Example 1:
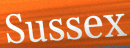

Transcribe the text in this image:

Sussex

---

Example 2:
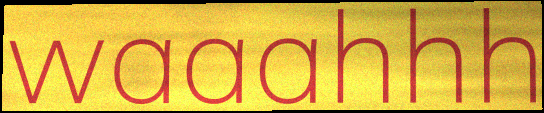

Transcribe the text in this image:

waaahhh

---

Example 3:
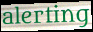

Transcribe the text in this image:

alerting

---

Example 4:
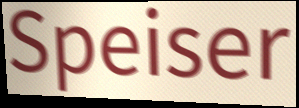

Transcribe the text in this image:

Speiser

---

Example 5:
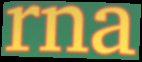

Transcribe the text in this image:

rna